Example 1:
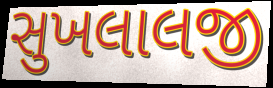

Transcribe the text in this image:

સુખલાલજી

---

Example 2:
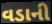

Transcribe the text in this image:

વડાની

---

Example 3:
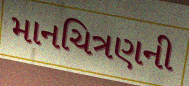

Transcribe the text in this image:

માનચિત્રણની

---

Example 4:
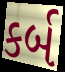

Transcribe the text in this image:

કર્બ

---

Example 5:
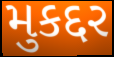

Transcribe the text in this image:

મુકદ્દર